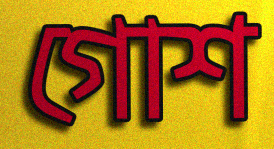
গোশ